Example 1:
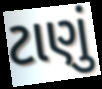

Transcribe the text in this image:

ટાણું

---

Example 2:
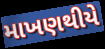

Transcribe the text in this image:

માખણથીયે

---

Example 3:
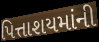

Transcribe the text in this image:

પિત્તાશયમાંની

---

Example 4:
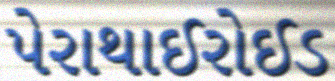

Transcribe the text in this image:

પેરાથાઈરોઈડ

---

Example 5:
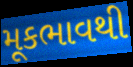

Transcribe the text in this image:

મૂકભાવથી